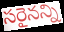
సరైనన్ని